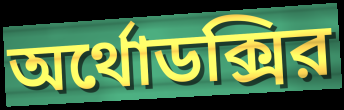
অর্থোডক্সির